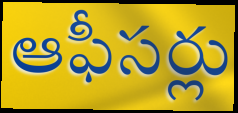
ఆఫీసర్లు